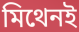
মিথেনই